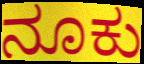
ನೂಕು